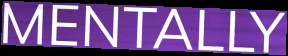
MENTALLY